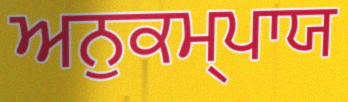
ਅਨੁਕਮ੍ਪਾਯ